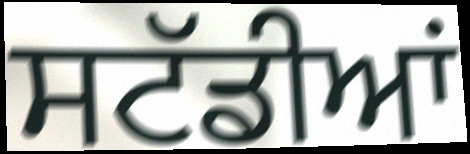
ਸਟੱਡੀਆਂ